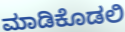
ಮಾಡಿಕೊಡಲಿ